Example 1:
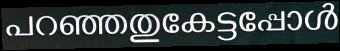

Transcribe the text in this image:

പറഞ്ഞതുകേട്ടപ്പോൾ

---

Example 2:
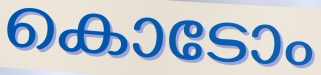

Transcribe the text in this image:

കൊടോം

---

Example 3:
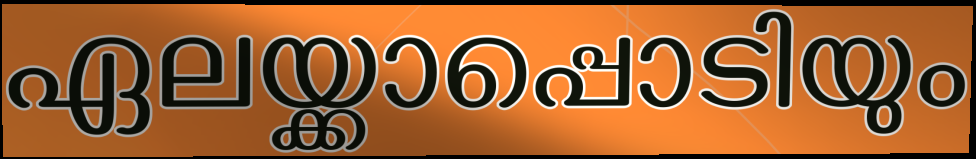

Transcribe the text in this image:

ഏലയ്ക്കാപ്പൊടിയും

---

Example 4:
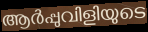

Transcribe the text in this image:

ആർപ്പുവിളിയുടെ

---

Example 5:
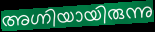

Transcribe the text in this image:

അഗ്നിയായിരുന്നു